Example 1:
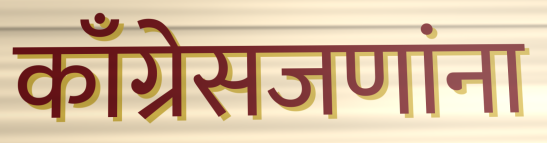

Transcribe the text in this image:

काँग्रेसजणांना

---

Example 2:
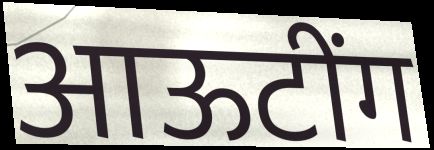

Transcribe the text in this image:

आऊटींग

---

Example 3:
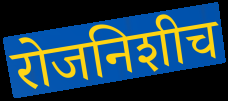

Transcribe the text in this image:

रोजनिशीच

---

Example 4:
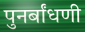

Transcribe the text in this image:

पुनर्बांधणी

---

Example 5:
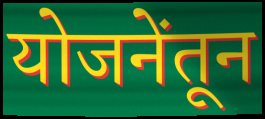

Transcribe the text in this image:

योजनेंतून